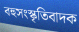
বহুসংস্কৃতিবাদক